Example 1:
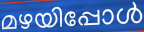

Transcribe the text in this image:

മഴയിപ്പോൾ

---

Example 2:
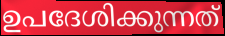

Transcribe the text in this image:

ഉപദേശിക്കുന്നത്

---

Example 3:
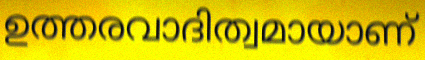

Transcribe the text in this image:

ഉത്തരവാദിത്വമായാണ്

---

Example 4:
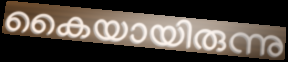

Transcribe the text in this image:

കൈയായിരുന്നു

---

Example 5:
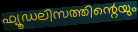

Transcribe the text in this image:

ഫ്യൂഡലിസത്തിന്റെയും